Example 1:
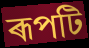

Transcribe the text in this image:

ৰূপটি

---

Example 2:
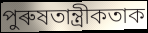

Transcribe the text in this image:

পুৰুষতান্ত্ৰীকতাক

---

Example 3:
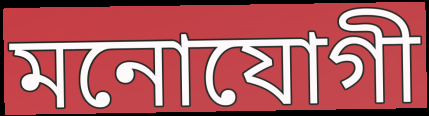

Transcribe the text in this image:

মনোযোগী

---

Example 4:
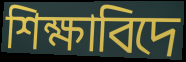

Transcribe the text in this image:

শিক্ষাবিদে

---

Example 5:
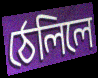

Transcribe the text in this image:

ঠেলিলে